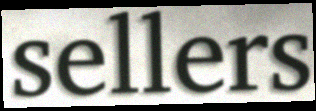
sellers